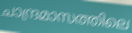
ചാന്ദ്രമാസത്തിലെ